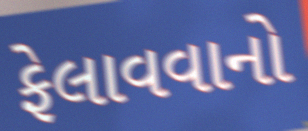
ફેલાવવાનો